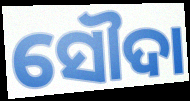
ସୌଦା